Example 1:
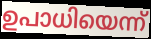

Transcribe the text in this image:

ഉപാധിയെന്ന്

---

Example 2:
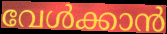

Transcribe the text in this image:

വേൾക്കാൻ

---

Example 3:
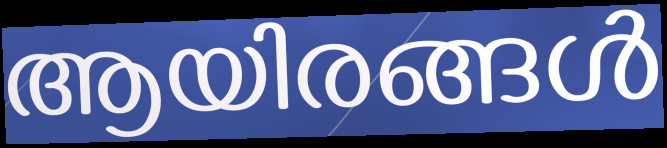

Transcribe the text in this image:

ആയിരങ്ങൾ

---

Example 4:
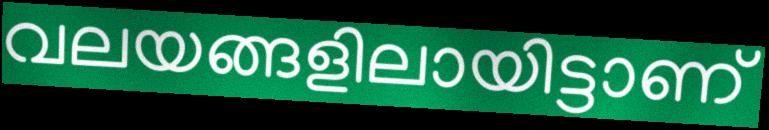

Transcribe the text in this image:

വലയങ്ങളിലായിട്ടാണ്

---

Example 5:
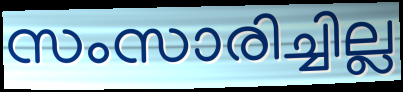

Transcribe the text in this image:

സംസാരിച്ചില്ല